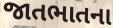
જાતભાતના